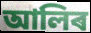
আলিৰ